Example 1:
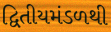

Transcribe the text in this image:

દ્વિતીયમંડળથી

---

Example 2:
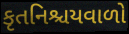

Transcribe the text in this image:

કૃતનિશ્ચયવાળો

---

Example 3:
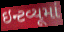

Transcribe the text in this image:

ઇન્ટવ્યૂમાં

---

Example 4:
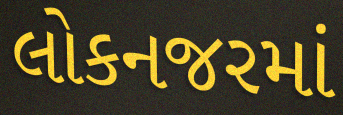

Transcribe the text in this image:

લોકનજરમાં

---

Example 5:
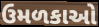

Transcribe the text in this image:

ઉમળકાઓ